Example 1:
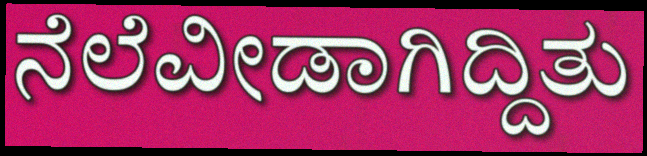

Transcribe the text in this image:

ನೆಲೆವೀಡಾಗಿದ್ದಿತು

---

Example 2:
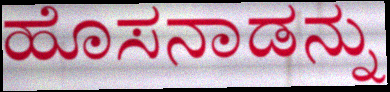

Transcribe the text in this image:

ಹೊಸನಾಡನ್ನು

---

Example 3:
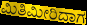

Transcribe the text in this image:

ಮಿತಿಮೀರಿದಾಗ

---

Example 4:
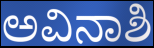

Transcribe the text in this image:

ಅವಿನಾಶಿ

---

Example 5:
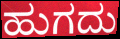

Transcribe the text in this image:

ಹುಗದು